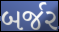
બર્જર